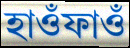
হাওঁফাওঁ